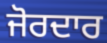
ਜੋਰਦਾਰ